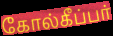
கோல்கீப்பர்